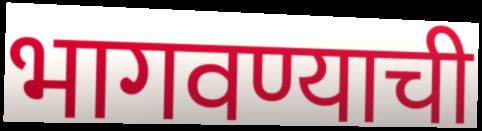
भागवण्याची